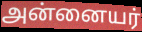
அன்னையர்